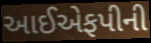
આઈએફપીની